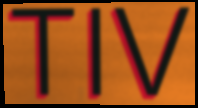
TIV